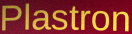
Plastron